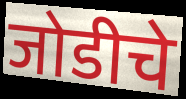
जोडीचे